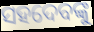
ସହଦେବଙ୍କୁ